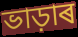
ভাড়াৰ